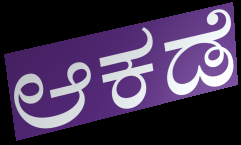
ಆಕಡೆ